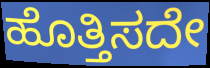
ಹೊತ್ತಿಸದೇ